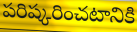
పరిష్కరించటానికి